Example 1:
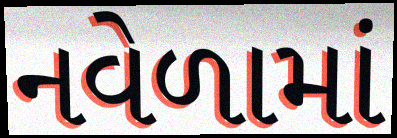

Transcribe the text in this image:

નવેળામાં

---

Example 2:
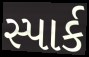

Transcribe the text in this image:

સ્પાર્ક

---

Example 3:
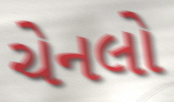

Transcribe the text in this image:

ચેનલો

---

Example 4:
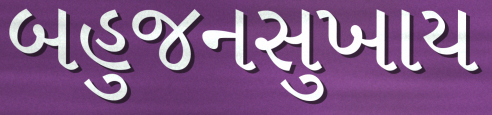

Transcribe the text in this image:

બહુજનસુખાય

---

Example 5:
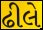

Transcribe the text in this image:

ઢીલે